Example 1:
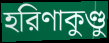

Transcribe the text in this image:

হরিণাকুণ্ডু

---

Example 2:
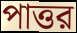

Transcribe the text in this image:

পাত্তর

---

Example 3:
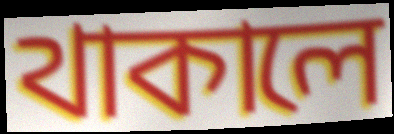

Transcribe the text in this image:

থাকালে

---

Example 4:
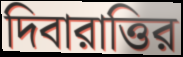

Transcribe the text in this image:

দিবারাত্তির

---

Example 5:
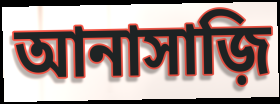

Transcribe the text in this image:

আনাসাজ়ি